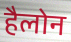
हैलोन